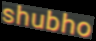
shubho